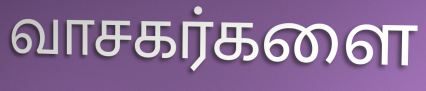
வாசகர்களை